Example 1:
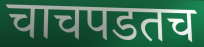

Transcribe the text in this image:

चाचपडतच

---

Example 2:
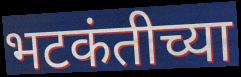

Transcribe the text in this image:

भटकंतीच्या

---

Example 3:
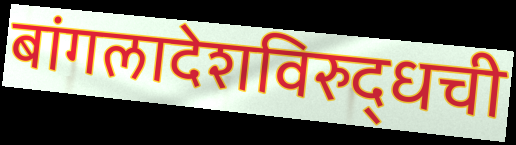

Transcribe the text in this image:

बांगलादेशविरुद्धची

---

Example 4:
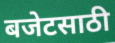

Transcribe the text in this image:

बजेटसाठी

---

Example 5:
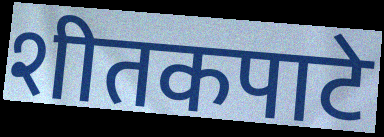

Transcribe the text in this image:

शीतकपाटे